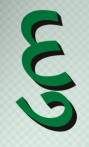
દુ